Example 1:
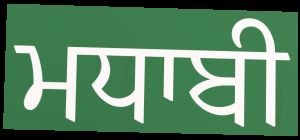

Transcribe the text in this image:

ਮਧਾਬੀ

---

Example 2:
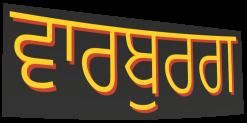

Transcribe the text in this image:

ਵਾਰਬੁਰਗ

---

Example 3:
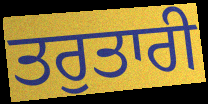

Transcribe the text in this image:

ਤਰੁਤਾਰੀ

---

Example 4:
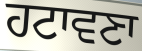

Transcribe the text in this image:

ਹਟਾਵਣਾ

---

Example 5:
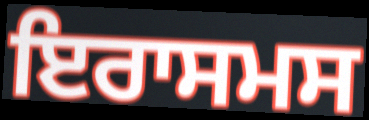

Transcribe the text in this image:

ਇਰਾਸਮਸ